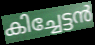
കിച്ചേട്ടൻ